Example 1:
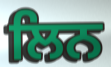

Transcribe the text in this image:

ਲਿਨ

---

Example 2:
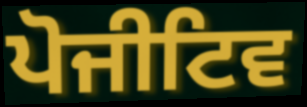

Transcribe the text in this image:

ਪੋਜੀਟਿਵ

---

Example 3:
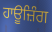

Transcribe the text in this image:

ਹਾਊਜ਼ਿੰਗ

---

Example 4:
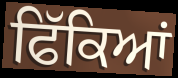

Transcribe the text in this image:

ਫਿੱਕਿਆਂ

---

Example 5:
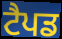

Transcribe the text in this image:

ਟੈਪਡ